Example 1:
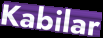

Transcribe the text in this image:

Kabilar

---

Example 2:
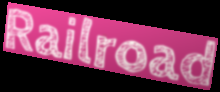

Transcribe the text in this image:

Railroad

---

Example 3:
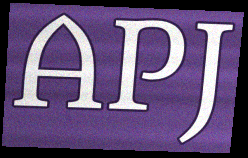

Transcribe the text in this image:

APJ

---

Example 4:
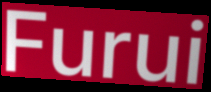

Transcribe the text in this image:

Furui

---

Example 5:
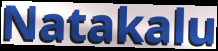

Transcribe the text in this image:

Natakalu